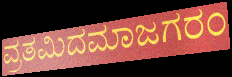
ವ್ರತಮಿದಮಾಜಗರಂ